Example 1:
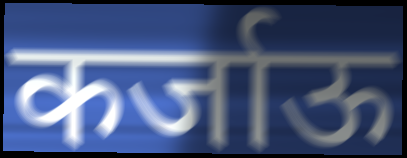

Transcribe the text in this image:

कर्जाऊ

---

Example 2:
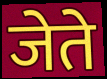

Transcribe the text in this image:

जेते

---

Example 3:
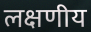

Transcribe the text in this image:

लक्षणीय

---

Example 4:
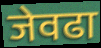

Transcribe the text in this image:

जेवढा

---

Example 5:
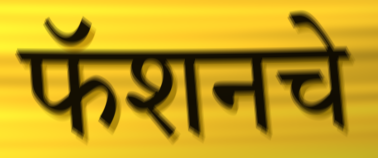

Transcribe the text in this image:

फॅशनचे